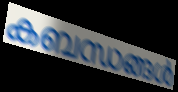
കബന്ധങ്ങൾ